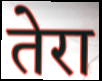
तेरा